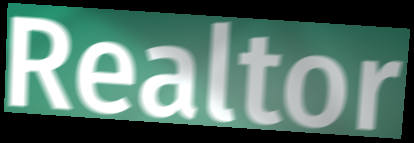
Realtor